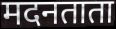
मदनताता